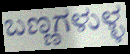
ಬಣ್ಣಗಳುಳ್ಳ